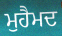
ਮੁਹੈਮਦ